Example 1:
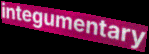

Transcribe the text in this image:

integumentary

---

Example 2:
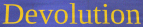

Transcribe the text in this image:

Devolution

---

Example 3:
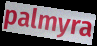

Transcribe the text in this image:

palmyra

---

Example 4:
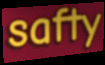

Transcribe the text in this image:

safty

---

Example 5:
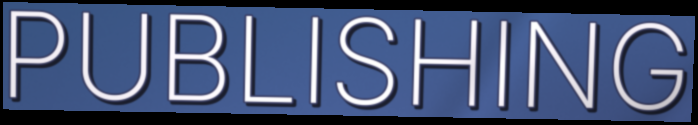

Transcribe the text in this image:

PUBLISHING